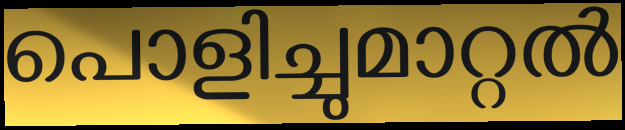
പൊളിച്ചുമാറ്റൽ